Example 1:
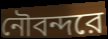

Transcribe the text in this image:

নৌবন্দরে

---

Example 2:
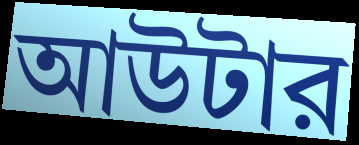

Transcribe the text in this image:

আউটার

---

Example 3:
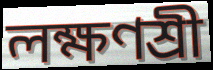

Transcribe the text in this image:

লক্ষণশ্রী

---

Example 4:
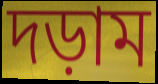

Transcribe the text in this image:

দড়াম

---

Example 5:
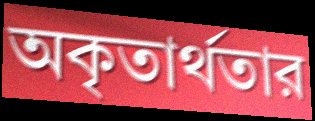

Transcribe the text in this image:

অকৃতার্থতার